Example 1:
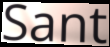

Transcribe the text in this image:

Sant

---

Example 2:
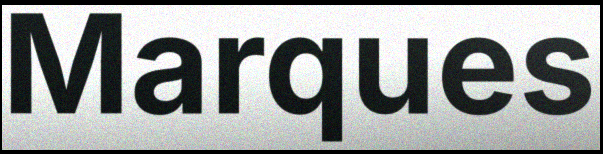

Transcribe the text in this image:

Marques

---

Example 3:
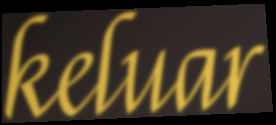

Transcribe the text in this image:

keluar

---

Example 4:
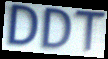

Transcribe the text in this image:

DDT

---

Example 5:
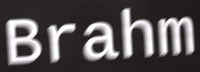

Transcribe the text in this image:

Brahm